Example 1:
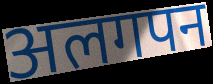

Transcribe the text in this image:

अलगपन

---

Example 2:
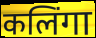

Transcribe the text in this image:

कलिंगा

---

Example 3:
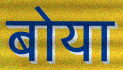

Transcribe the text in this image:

बोया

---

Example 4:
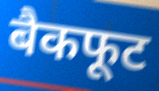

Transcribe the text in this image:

बैकफूट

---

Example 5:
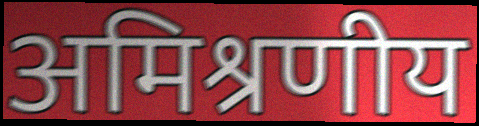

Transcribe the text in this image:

अमिश्रणीय